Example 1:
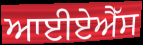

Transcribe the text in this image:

ਆਈਏਐੱਸ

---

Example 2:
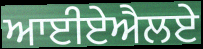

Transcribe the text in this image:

ਆਈਏਐਲਏ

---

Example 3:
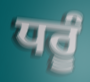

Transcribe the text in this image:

ਧਰੂੰ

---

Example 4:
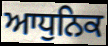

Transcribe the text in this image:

ਆਧੁਨਿਕ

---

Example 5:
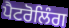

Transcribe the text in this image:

ਪੈਟਰੋਲਿੰਗ